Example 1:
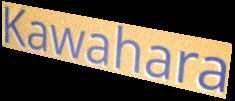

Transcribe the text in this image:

Kawahara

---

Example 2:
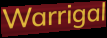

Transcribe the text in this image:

Warrigal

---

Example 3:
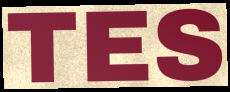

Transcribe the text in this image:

TES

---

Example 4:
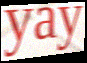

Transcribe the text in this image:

yay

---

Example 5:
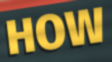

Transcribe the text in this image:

HOW